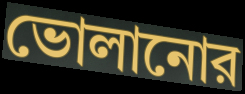
ভোলানোর